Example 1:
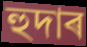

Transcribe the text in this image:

হুদাৰ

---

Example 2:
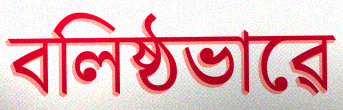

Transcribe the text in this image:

বলিষ্ঠভাৱে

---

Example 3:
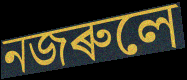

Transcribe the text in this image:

নজৰুলে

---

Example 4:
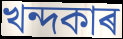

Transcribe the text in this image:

খন্দকাৰ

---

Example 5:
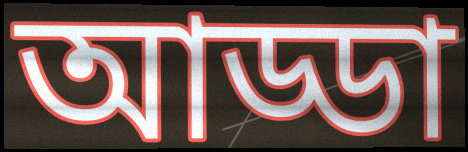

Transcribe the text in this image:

আড্ডা